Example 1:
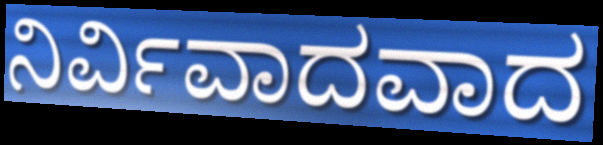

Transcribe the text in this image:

ನಿರ್ವಿವಾದವಾದ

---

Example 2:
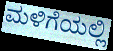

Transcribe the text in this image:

ಮಳಿಗೆಯಲ್ಲಿ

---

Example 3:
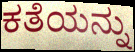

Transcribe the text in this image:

ಕತೆಯನ್ನು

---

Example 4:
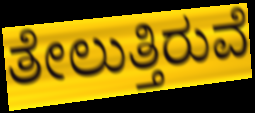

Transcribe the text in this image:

ತೇಲುತ್ತಿರುವೆ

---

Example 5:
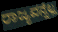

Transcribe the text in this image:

ರಾಜ್ಯವನ್ನೆಲ್ಲ